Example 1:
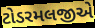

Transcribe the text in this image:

ટોડરમલજીએ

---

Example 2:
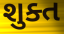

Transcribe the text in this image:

શુક્ત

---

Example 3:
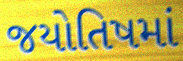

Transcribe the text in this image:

જયોતિષમાં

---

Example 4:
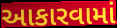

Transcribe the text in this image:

આકારવામાં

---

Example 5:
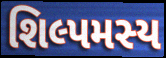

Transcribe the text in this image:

શિલ્પમસ્ય